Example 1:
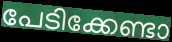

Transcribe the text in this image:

പേടിക്കേണ്ടാ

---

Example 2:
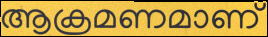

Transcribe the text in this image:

ആക്രമണമാണ്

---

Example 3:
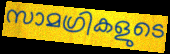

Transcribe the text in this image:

സാമഗ്രികളുടെ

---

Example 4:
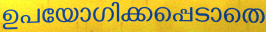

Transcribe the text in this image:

ഉപയോഗിക്കപ്പെടാതെ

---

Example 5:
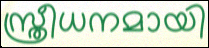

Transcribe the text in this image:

സ്ത്രീധനമായി